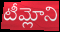
టీమ్లోని